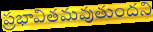
ప్రభావితమవుతుందని